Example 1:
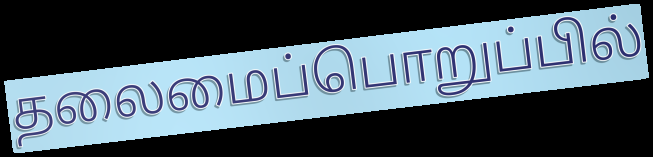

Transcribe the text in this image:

தலைமைப்பொறுப்பில்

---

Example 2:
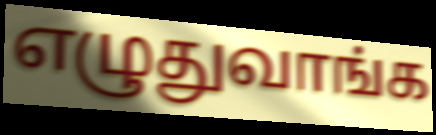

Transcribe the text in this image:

எழுதுவாங்க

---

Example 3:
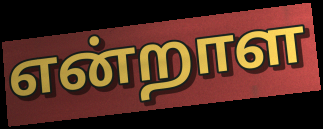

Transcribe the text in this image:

என்றாள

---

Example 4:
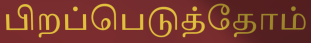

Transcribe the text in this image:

பிறப்பெடுத்தோம்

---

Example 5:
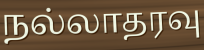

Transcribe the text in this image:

நல்லாதரவு